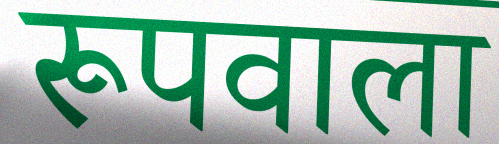
रूपवाला